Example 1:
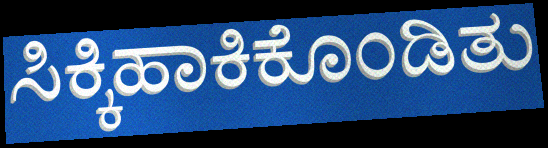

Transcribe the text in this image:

ಸಿಕ್ಕಿಹಾಕಿಕೊಂಡಿತು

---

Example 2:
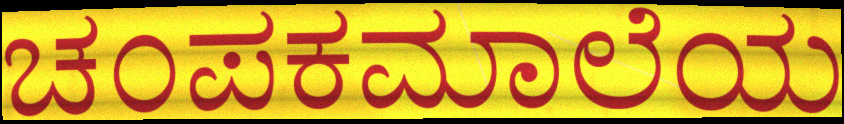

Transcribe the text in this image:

ಚಂಪಕಮಾಲೆಯ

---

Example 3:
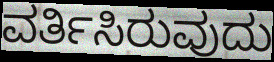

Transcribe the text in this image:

ವರ್ತಿಸಿರುವುದು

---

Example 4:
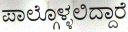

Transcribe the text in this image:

ಪಾಲ್ಗೊಳ್ಳಲಿದ್ದಾರೆ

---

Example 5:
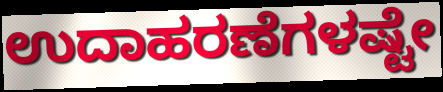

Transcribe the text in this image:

ಉದಾಹರಣೆಗಳಷ್ಟೇ